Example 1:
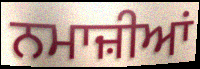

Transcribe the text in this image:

ਨਮਾਜ਼ੀਆਂ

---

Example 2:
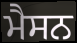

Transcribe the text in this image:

ਮੈਸਨ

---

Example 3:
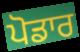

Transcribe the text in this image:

ਪੋਡਾਰ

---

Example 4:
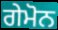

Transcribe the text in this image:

ਗੇਮੋਨ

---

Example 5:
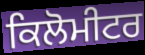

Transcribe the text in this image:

ਕਿਲੋਮੀਟਰ